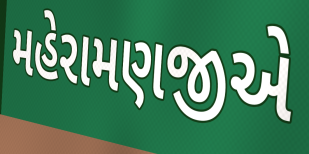
મહેરામણજીએ